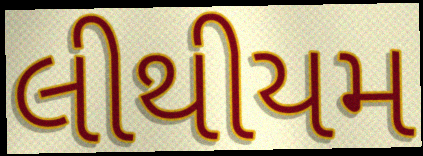
લીથીયમ